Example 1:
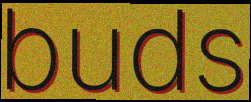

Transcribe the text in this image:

buds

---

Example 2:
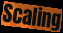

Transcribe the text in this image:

Scaling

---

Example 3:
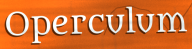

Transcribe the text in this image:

Operculum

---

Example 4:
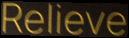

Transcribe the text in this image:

Relieve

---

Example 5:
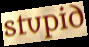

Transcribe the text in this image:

stupid